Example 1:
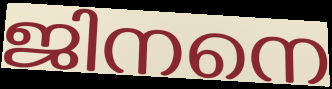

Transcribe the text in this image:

ജിനനെ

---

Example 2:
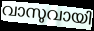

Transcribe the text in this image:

വാസുവായി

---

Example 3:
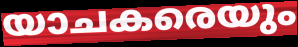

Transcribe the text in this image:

യാചകരെയും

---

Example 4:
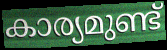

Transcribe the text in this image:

കാര്യമുണ്ട്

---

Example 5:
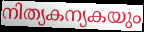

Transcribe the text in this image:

നിത്യകന്യകയും